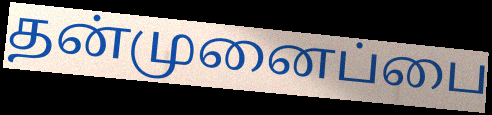
தன்முனைப்பை